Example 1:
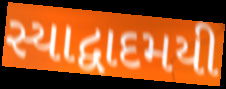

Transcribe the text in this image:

સ્યાદ્વાદમયી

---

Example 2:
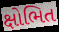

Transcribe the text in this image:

ક્ષોભિત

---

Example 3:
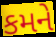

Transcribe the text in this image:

કમને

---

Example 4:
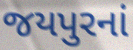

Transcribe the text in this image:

જયપુરનાં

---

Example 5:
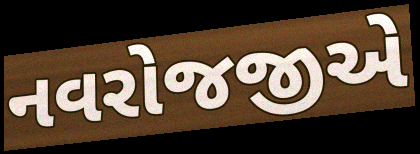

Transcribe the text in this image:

નવરોજજીએ